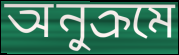
অনুক্ৰমে